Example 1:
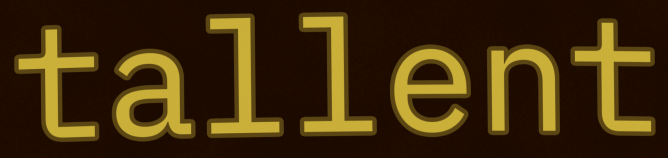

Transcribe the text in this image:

tallent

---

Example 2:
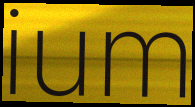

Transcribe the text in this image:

ium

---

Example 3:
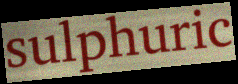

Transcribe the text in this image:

sulphuric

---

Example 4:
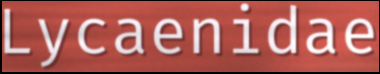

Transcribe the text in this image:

Lycaenidae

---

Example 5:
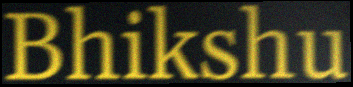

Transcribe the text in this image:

Bhikshu